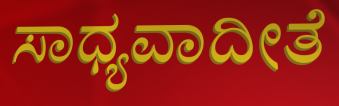
ಸಾಧ್ಯವಾದೀತೆ